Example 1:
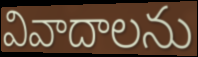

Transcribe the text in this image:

వివాదాలను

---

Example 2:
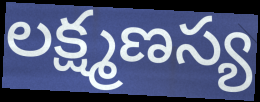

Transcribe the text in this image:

లక్ష్మణస్య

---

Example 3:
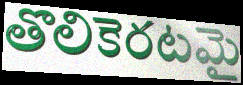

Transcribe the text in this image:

తొలికెరటమై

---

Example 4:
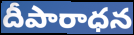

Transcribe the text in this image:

దీపారాధన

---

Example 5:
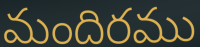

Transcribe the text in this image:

మందిరము